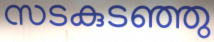
സടകുടഞ്ഞു